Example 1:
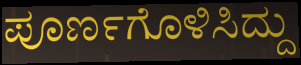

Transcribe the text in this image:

ಪೂರ್ಣಗೊಳಿಸಿದ್ದು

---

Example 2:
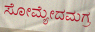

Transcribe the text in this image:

ಸೋಮ್ಯೇದಮಗ್ರ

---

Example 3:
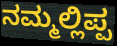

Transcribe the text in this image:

ನಮ್ಮಲ್ಲಿಪ್ಪ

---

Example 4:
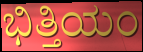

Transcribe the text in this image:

ಭಿತ್ತಿಯಂ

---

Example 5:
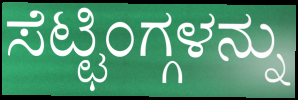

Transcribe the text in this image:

ಸೆಟ್ಟಿಂಗ್ಗಳನ್ನು